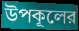
উপকূলের